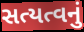
સત્યત્વનું